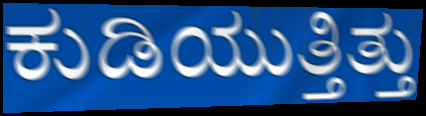
ಕುಡಿಯುತ್ತಿತ್ತು